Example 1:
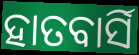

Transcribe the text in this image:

ହାତବାର୍ସି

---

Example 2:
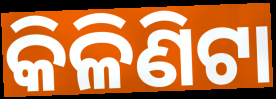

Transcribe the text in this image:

କିଳିଣିଟା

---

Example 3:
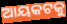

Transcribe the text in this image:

ଆୟକଟକୁ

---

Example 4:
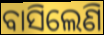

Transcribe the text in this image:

ବାସିଲେଣି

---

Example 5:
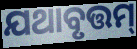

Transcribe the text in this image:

ଯଥାବୃତ୍ତମ୍